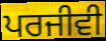
ਪਰਜੀਵੀ